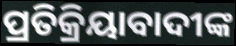
ପ୍ରତିକ୍ରିୟାବାଦୀଙ୍କ